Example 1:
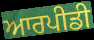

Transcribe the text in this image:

ਆਰਪੀਡੀ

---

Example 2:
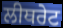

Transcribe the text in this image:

ਲੀਥਰੇਟ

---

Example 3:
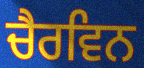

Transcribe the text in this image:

ਚੈਰਵਿਨ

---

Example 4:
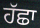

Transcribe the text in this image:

ਹੱਛਾ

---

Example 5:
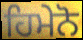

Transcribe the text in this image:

ਹਿਮੇਨੋ